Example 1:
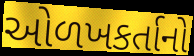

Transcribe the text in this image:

ઓળખકર્તાનો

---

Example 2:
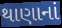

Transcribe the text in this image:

થાણાનાં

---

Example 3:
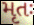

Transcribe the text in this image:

મૃતઃ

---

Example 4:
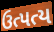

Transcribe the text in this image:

ઉત્પત્ય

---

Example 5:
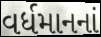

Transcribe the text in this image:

વર્ધમાનનાં